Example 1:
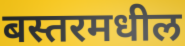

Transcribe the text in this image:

बस्तरमधील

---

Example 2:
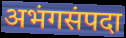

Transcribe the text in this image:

अभंगसंपदा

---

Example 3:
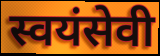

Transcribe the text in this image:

स्वयंसेवी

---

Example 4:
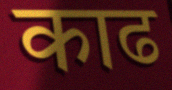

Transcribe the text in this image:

काढ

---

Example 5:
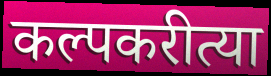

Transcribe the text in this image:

कल्पकरीत्या